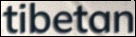
tibetan